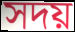
সদয়